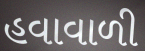
હવાવાળી